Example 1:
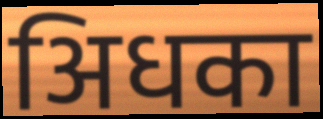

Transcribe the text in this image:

अिधका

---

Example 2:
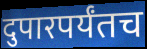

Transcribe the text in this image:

दुपारपर्यंतच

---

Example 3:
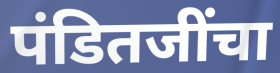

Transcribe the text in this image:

पंडितजींचा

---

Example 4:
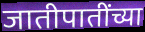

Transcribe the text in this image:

जातीपातींच्या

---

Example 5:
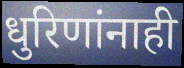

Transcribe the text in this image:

धुरिणांनाही